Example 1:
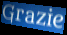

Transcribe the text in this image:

Grazie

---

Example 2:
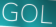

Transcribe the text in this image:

GOL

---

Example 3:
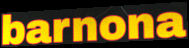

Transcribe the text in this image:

barnona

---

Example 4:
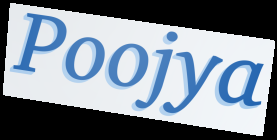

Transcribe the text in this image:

Poojya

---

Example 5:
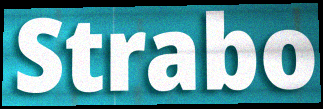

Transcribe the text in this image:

Strabo